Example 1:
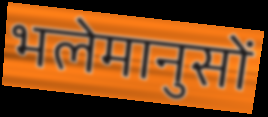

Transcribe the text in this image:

भलेमानुसों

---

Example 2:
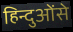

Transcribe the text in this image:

हिन्दुओंसे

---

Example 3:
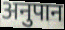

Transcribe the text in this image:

अनुपान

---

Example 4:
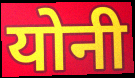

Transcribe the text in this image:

योनी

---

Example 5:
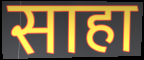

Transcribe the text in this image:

साहा